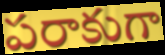
పరాకుగా